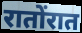
रातोंरात